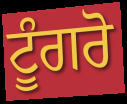
ਟੂੰਗਰੋ